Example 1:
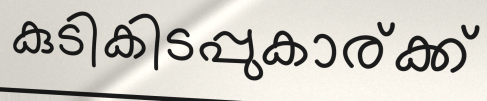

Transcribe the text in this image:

കുടികിടപ്പുകാര്ക്ക്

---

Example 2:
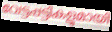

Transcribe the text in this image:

വേട്ടപ്പട്ടികളുമായി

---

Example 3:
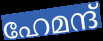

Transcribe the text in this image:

ഹേമന്ദ്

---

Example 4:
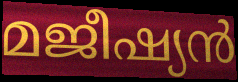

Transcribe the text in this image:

മജീഷ്യൻ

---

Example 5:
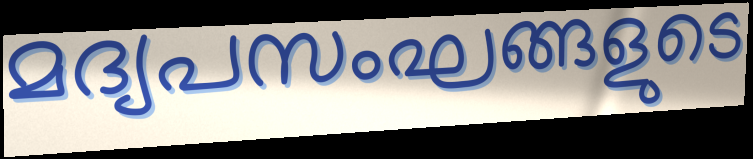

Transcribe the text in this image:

മദ്യപസംഘങ്ങളുടെ